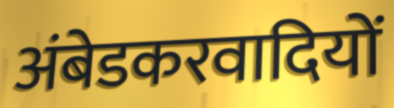
अंबेडकरवादियों